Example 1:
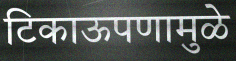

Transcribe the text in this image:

टिकाऊपणामुळे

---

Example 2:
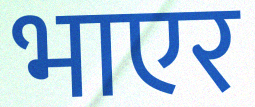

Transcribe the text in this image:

भाएर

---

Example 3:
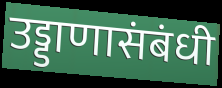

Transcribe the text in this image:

उड्डाणासंबंधी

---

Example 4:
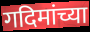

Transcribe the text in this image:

गदिमांच्या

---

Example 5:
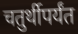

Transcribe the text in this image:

चतुर्थीपर्यंत